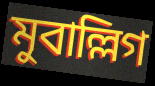
মুবাল্লিগ